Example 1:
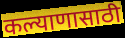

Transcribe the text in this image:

कल्याणासाठी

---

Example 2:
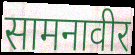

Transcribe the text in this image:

सामनावीर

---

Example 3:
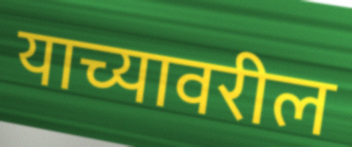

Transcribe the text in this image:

याच्यावरील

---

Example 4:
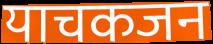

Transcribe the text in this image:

याचकजन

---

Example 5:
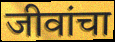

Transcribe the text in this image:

जीवांचा